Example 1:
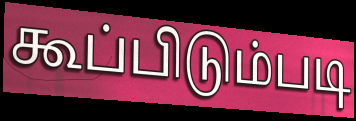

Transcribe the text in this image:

கூப்பிடும்படி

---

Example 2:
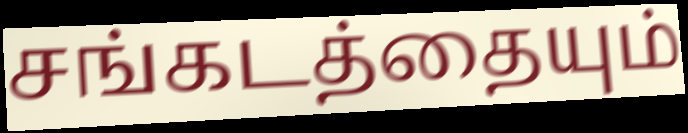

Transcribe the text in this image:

சங்கடத்தையும்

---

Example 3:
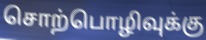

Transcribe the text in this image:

சொற்பொழிவுக்கு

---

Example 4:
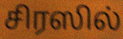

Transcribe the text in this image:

சிரஸில்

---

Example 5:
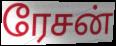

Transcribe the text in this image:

ரேசன்